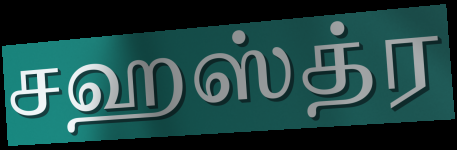
சஹஸ்த்ர